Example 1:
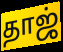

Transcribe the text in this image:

தாஜ்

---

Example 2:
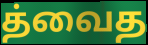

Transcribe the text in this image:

த்வைத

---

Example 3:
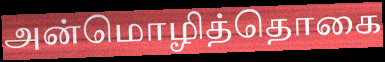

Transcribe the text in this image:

அன்மொழித்தொகை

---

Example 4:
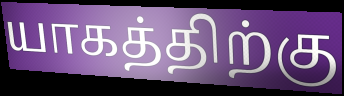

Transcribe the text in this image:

யாகத்திற்கு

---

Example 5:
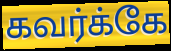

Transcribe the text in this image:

கவர்க்கே